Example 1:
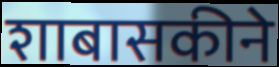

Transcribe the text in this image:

शाबासकीने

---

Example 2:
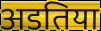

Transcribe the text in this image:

अडतिया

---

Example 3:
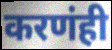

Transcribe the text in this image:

करणंही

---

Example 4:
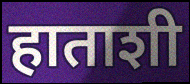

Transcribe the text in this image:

हाताशी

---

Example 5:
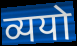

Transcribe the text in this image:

व्ययो